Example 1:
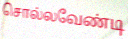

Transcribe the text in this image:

சொல்லவேண்டி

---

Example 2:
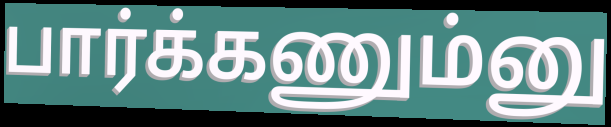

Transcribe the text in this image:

பார்க்கணும்னு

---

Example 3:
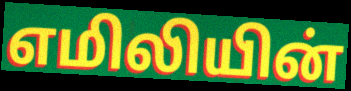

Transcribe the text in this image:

எமிலியின்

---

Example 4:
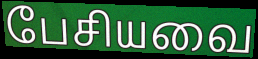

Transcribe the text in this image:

பேசியவை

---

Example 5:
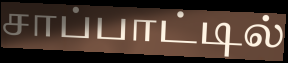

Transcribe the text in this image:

சாப்பாட்டில்